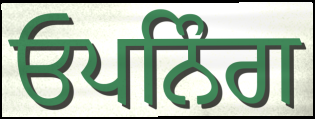
ਓਪਨਿੰਗ